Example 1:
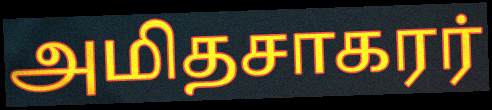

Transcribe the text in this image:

அமிதசாகரர்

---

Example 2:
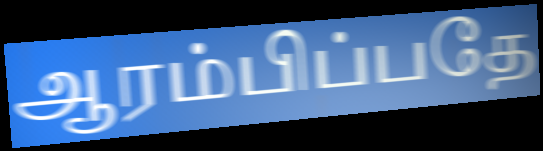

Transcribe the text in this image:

ஆரம்பிப்பதே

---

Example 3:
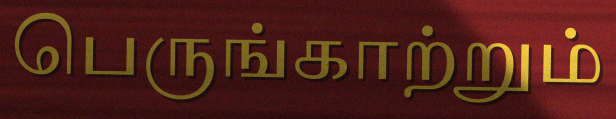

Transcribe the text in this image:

பெருங்காற்றும்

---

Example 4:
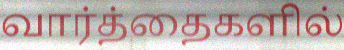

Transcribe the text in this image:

வார்த்தைகளில்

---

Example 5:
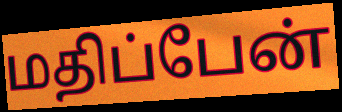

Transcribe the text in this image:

மதிப்பேன்